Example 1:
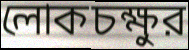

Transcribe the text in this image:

লোকচক্ষুর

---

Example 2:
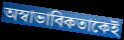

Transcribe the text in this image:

অস্বাভাবিকতাকেই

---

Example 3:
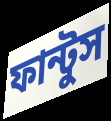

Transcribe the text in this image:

ফান্টুস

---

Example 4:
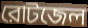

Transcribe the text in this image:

রোটজেল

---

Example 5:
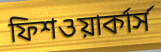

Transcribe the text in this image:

ফিশওয়ার্কার্স